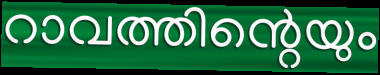
റാവത്തിന്റെയും